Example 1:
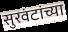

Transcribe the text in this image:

सुरवंटांच्या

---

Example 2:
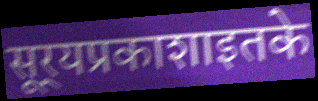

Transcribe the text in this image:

सूर्यप्रकाशाइतके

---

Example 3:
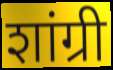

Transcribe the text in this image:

शांग्री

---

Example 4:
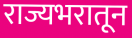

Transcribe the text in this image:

राज्यभरातून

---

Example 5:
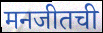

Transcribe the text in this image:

मनजीतची